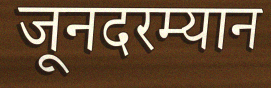
जूनदरम्यान